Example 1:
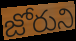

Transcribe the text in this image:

జోరుని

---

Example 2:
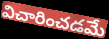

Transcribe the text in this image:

విచారించడమే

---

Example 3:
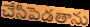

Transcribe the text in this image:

చేసిపెడతాను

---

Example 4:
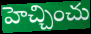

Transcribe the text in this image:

హెచ్చించు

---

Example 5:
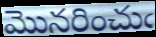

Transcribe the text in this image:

మొనరించుఁ